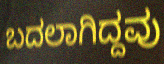
ಬದಲಾಗಿದ್ದವು